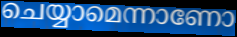
ചെയ്യാമെന്നാണോ